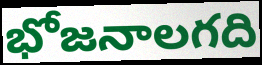
భోజనాలగది